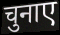
चुनाए